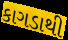
કાગડાથી